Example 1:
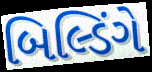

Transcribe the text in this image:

બિલ્ડિંગે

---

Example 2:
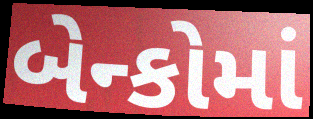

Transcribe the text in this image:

બેન્કોમાં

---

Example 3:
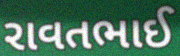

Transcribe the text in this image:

રાવતભાઈ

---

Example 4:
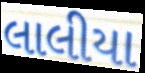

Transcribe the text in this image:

લાલીયા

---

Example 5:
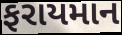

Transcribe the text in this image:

ફરાયમાન